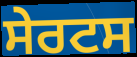
ਸੇਰਟਸ